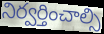
నిర్వర్తించాల్సి